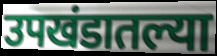
उपखंडातल्या